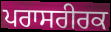
ਪਰਾਸਰੀਰਕ